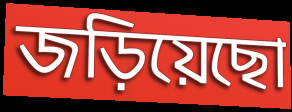
জড়িয়েছো